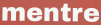
mentre